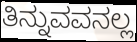
ತಿನ್ನುವವನಲ್ಲ